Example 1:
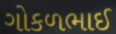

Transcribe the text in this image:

ગોકળભાઈ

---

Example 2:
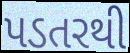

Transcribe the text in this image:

પડતરથી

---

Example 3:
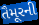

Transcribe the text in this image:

તૈમૂરની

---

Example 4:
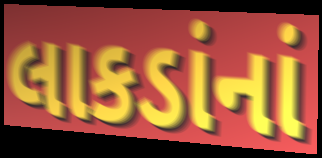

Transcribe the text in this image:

લાકડાંનાં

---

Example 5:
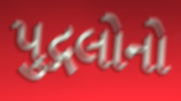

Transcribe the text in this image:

પુદ્ગલોનો